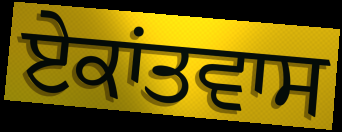
ਏਕਾਂਤਵਾਸ